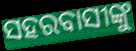
ସହରବାସୀଙ୍କୁ